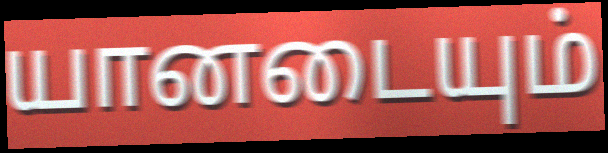
யானடையும்